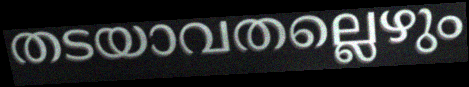
തടയാവതല്ലെഴും